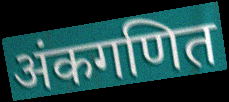
अंकगणित